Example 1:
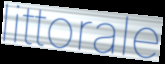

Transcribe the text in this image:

littorale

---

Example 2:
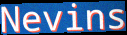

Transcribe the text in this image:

Nevins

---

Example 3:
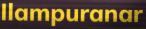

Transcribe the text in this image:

Ilampuranar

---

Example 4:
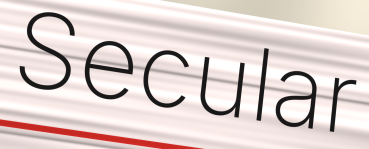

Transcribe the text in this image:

Secular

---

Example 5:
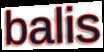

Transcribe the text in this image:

balis